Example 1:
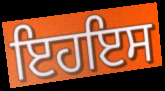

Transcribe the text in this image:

ਇਹਇਸ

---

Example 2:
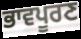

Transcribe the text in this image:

ਭਾਵਪੂਰਣ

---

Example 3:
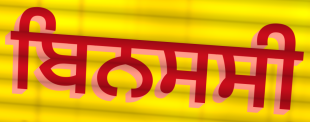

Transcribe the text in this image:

ਬਿਨਸਸੀ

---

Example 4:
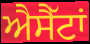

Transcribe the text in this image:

ਐਸੈੱਟਾਂ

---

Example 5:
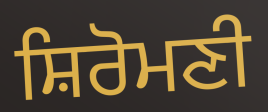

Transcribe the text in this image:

ਸ਼ਿਰੋਮਣੀ